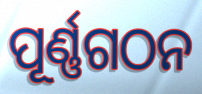
ପୂର୍ଣ୍ଣଗଠନ